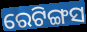
ରେଟିଙ୍ଗସ